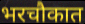
भरचौकात